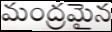
మంద్రమైన